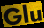
Glu